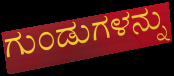
ಗುಂಡುಗಳನ್ನು